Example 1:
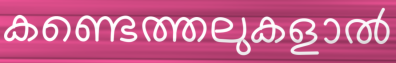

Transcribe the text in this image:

കണ്ടെത്തലുകളാൽ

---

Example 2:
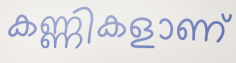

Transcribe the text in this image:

കണ്ണികളാണ്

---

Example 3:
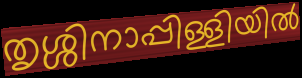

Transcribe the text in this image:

തൃശ്ശിനാപ്പിള്ളിയിൽ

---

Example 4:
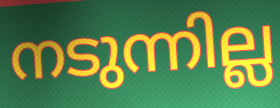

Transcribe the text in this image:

നടുന്നില്ല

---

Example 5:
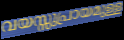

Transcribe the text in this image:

വയസ്സുപ്രായമുള്ള